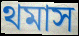
থমাস